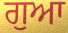
ਗੁਆ